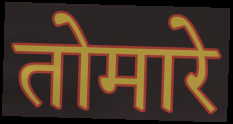
तोमारे